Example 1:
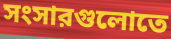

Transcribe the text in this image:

সংসারগুলোতে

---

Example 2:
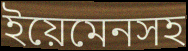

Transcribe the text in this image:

ইয়েমেনসহ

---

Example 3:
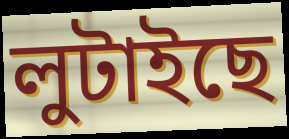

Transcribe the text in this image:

লুটাইছে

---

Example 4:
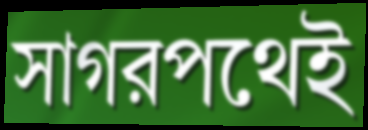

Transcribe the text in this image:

সাগরপথেই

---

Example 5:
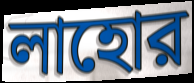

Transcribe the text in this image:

লাহোর